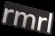
rmrl